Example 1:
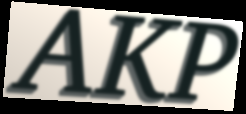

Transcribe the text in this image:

AKP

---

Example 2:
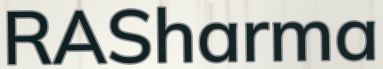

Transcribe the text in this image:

RASharma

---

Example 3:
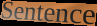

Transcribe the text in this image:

Sentence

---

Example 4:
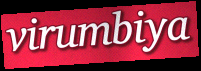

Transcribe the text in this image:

virumbiya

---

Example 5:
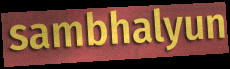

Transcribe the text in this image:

sambhalyun